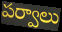
పర్వాలు